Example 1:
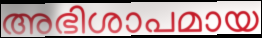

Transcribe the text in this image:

അഭിശാപമായ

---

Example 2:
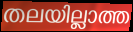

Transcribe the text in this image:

തലയില്ലാത്ത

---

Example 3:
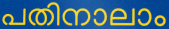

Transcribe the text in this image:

പതിനാലാം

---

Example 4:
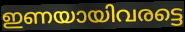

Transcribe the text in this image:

ഇണയായിവരട്ടെ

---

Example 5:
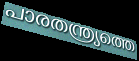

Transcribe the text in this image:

പാരതന്ത്ര്യത്തെ